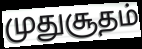
முதுசூதம்